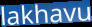
lakhavu